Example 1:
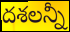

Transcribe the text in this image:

దశలన్నీ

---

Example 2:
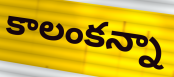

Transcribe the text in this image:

కాలంకన్నా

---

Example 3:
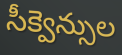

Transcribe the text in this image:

సీక్వెన్సుల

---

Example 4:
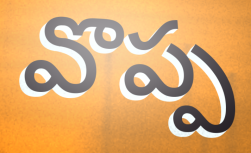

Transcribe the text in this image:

వొప్ప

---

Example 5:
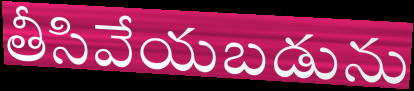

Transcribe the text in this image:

తీసివేయబడును